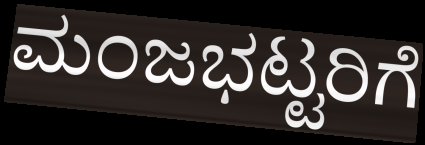
ಮಂಜಭಟ್ಟರಿಗೆ